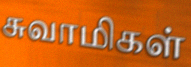
சுவாமிகள்